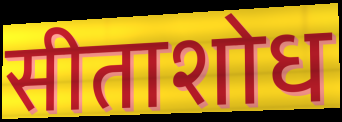
सीताशोध